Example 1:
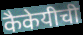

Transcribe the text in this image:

कैकेयीची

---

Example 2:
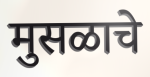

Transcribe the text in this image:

मुसळाचे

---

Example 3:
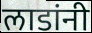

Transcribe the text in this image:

लाडांनी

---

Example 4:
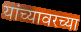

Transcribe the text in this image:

यांच्यावरच्या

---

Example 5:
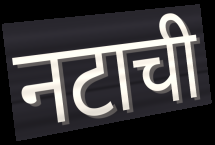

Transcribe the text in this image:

नटाची